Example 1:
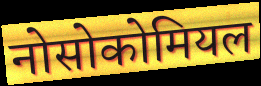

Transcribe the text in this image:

नोसोकोमियल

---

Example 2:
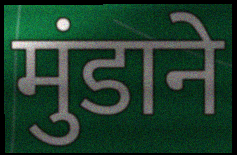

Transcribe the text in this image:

मुंडाने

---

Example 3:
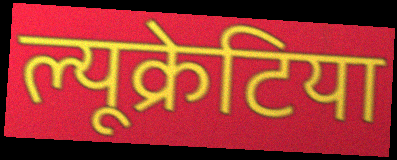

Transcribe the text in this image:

ल्यूक्रेटिया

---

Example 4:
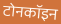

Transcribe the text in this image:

टोनकॉइन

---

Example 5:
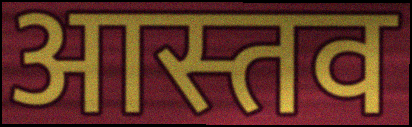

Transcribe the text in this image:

आस्तव